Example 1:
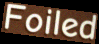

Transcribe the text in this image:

Foiled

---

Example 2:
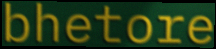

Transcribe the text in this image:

bhetore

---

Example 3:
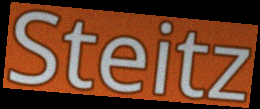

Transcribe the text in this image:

Steitz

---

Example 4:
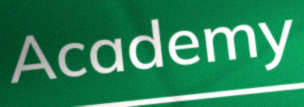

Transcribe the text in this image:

Academy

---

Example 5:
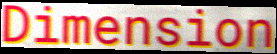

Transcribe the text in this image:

Dimension